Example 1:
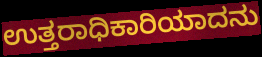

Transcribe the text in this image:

ಉತ್ತರಾಧಿಕಾರಿಯಾದನು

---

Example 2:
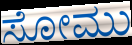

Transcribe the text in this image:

ಸೋಮು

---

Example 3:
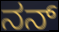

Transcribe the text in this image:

ನನ್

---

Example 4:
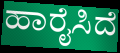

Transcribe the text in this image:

ಹಾರೈಸಿದೆ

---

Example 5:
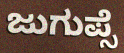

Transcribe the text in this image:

ಜುಗುಪ್ಸೆ